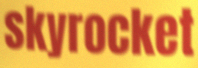
skyrocket